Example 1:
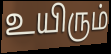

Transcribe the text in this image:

உயிரும்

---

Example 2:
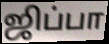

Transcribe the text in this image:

ஜிப்பா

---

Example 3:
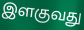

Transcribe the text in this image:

இளகுவது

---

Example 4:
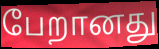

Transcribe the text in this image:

பேறானது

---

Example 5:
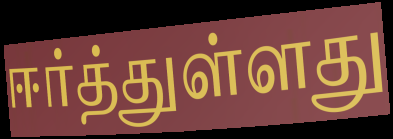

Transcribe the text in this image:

ஈர்த்துள்ளது